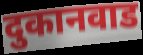
दुकानवाड